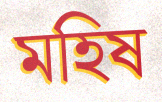
মহিষ